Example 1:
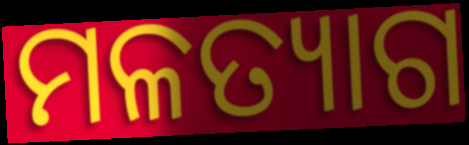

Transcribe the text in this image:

ମଳତ୍ୟାଗ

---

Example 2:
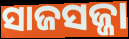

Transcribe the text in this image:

ସାଜସଜ୍ଜା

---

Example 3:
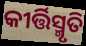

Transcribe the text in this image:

କୀର୍ତ୍ତିସ୍ମୃତି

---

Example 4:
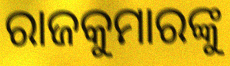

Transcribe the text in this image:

ରାଜକୁମାରଙ୍କୁ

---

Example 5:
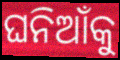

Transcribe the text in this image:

ଘନିଆଁକୁ